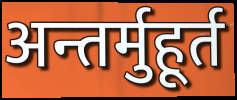
अन्तर्मुहूर्त